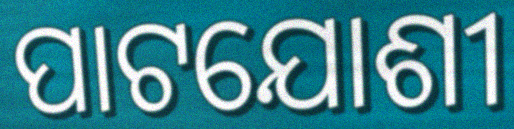
ପାଟଯୋଶୀ